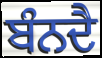
ਬੰਨਦੈ